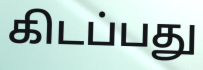
கிடப்பது